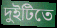
দুইটিতে